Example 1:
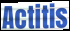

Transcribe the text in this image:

Actitis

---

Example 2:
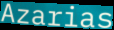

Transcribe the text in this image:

Azarias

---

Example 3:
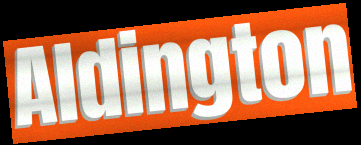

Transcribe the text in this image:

Aldington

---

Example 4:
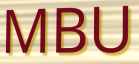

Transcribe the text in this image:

MBU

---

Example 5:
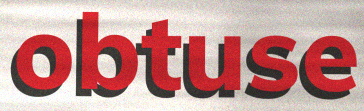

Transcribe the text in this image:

obtuse